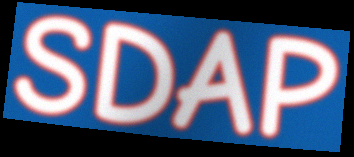
SDAP